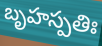
బృహస్పతిః